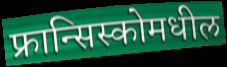
फ्रान्सिस्कोमधील